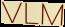
VLM